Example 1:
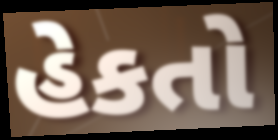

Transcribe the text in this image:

હેકતો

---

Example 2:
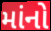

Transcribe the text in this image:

માંનો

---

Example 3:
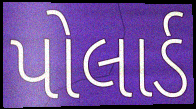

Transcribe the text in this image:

પોલાર્ડ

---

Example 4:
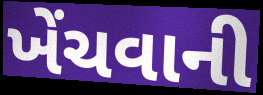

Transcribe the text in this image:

ખેંચવાની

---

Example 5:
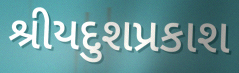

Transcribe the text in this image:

શ્રીયદુશપ્રકાશ